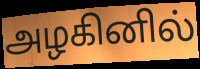
அழகினில்